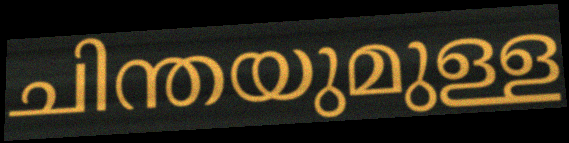
ചിന്തയുമുള്ള